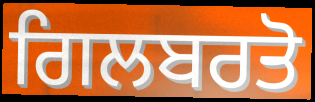
ਗਿਲਬਰਤੋ